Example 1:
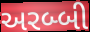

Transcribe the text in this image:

અરબ્બી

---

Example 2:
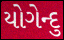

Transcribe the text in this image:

યોગેન્દુ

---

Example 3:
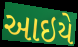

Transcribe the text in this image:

આઇયે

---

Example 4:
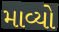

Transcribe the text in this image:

માવ્યો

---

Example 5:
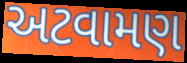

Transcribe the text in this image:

અટવામણ